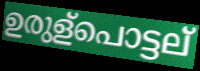
ഉരുള്പൊട്ടല്